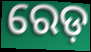
ରେଡ଼